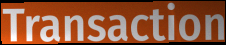
Transaction